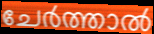
ചേർത്താൽ